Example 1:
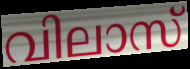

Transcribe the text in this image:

വിലാസ്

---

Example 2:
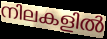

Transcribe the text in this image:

നിലകളിൽ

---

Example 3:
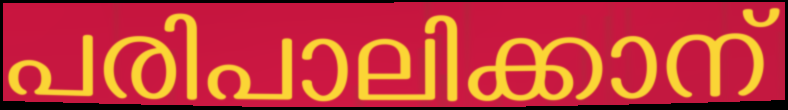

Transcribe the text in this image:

പരിപാലിക്കാന്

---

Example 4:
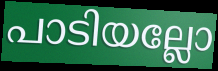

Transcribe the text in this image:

പാടിയല്ലോ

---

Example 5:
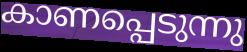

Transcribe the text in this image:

കാണപ്പെടുന്നു